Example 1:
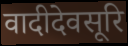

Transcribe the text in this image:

वादीदेवसूरि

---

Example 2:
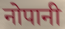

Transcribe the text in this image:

नोपानी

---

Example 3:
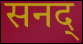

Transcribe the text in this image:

सनद्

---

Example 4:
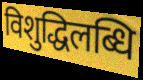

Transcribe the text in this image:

विशुद्धिलब्धि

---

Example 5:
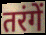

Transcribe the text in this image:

तरंगें